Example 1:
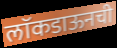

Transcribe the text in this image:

लॉकडाऊनची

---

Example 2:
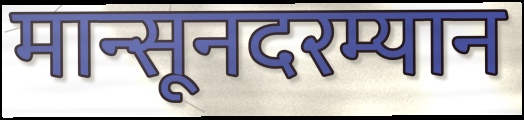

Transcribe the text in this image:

मान्सूनदरम्यान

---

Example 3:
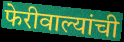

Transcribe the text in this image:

फेरीवाल्यांची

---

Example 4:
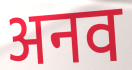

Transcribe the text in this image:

अनव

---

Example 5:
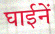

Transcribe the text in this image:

घाईनें